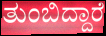
ತುಂಬಿದ್ದಾರೆ